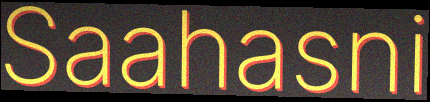
Saahasni